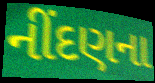
નીંદણના